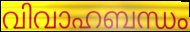
വിവാഹബന്ധം